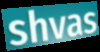
shvas